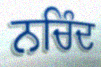
ਨਚਿੰਦ